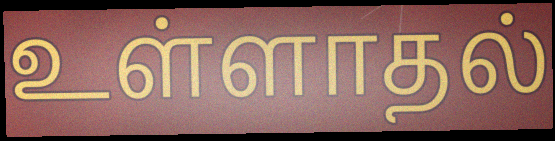
உள்ளாதல்